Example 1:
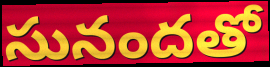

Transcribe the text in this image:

సునందతో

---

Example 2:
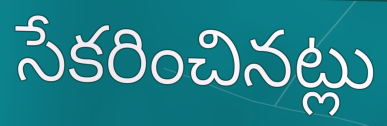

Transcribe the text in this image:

సేకరించినట్లు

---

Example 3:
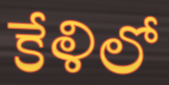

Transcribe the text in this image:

కేళిలో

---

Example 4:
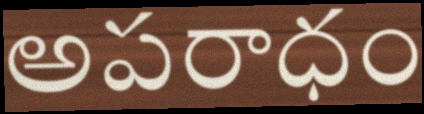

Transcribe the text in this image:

అపరాధం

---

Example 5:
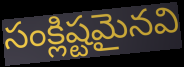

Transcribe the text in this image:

సంక్లిష్టమైనవి